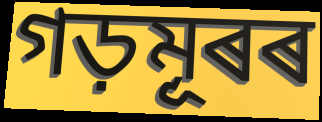
গড়মূৰৰ